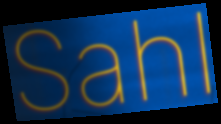
Sahl